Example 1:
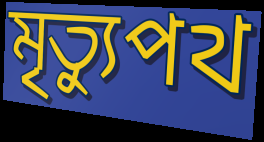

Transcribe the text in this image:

মৃত্যুপথ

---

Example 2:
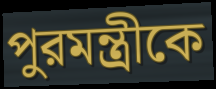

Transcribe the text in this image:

পুরমন্ত্রীকে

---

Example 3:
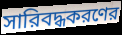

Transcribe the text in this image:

সারিবদ্ধকরণের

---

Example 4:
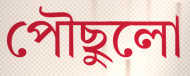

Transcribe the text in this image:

পৌছুলো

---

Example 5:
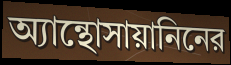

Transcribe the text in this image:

অ্যান্থোসায়ানিনের